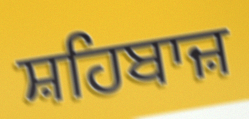
ਸ਼ਹਿਬਾਜ਼